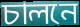
চালনে